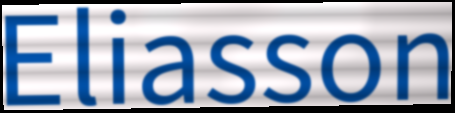
Eliasson